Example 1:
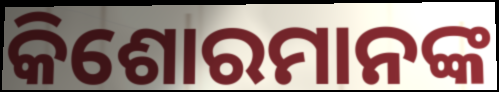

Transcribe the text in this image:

କିଶୋରମାନଙ୍କ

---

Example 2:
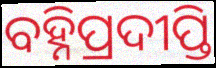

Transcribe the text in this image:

ବହ୍ନିପ୍ରଦୀପ୍ତି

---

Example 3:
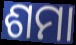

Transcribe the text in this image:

ଶମା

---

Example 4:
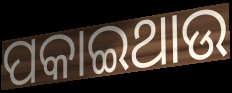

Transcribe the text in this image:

ପକାଇଥାଉ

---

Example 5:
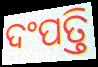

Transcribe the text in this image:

ଦଂପତ୍ତି